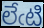
లేఁటి